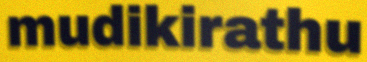
mudikirathu